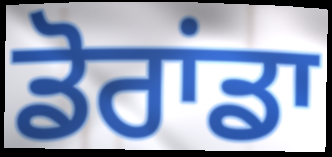
ਡੋਰਾਂਡਾ